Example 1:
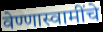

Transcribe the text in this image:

वेण्णास्वामींचे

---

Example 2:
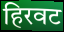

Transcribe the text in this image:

हिरवट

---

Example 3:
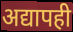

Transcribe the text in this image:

अद्यापही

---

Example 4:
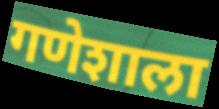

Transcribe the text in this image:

गणेशाला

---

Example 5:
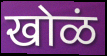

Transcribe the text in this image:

खोळं